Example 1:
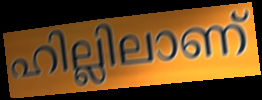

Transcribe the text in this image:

ഹില്ലിലാണ്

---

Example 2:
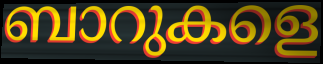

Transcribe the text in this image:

ബാറുകളെ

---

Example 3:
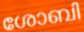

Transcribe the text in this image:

ശോബി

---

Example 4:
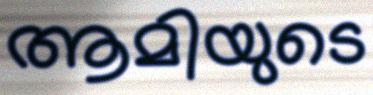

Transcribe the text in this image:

ആമിയുടെ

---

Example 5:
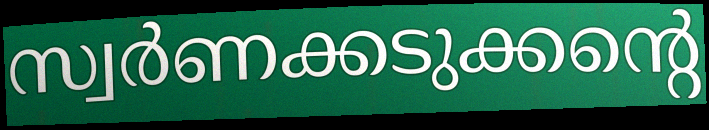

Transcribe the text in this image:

സ്വർണക്കടുക്കന്റെ